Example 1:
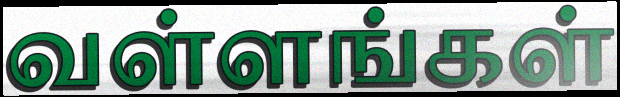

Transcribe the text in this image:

வள்ளங்கள்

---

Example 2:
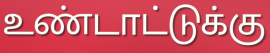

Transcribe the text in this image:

உண்டாட்டுக்கு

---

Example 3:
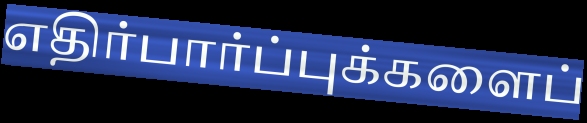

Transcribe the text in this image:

எதிர்பார்ப்புக்களைப்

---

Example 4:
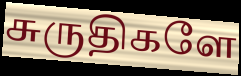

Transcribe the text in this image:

சுருதிகளே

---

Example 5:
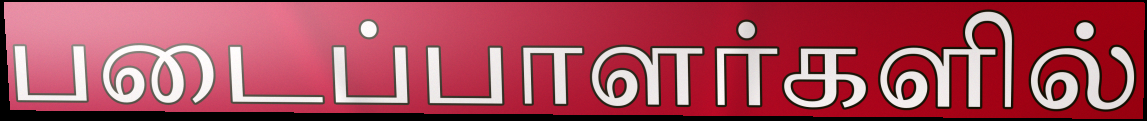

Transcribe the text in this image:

படைப்பாளர்களில்